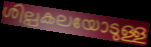
ശില്പകലയോടുള്ള